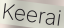
Keerai